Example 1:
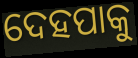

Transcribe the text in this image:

ଦେହପାକୁ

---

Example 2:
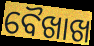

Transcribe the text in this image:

ବୈଖାଖ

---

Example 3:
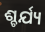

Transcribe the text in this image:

ଶ୍ଚର୍ଯ୍ୟ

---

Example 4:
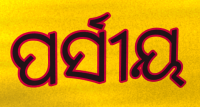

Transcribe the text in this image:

ପର୍ସୀୟ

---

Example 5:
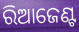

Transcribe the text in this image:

ରିଆଜେଣ୍ଟ